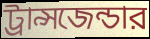
ট্রান্সজেন্ডার